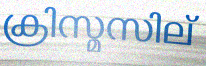
ക്രിസ്മസില്